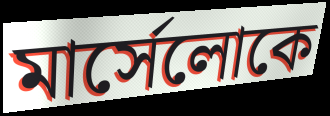
মার্সেলোকে